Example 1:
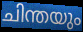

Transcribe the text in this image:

ചിന്തയും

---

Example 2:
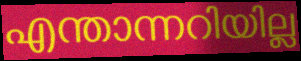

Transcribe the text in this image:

എന്താന്നറിയില്ല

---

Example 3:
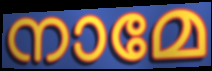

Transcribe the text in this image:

നാമേ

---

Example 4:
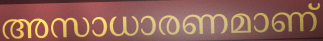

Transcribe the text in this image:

അസാധാരണമാണ്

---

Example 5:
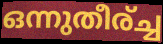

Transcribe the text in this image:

ഒന്നുതീര്ച്ച